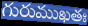
గురుముఖతః